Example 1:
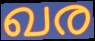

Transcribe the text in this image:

ഖര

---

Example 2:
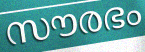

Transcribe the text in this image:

സൗരഭം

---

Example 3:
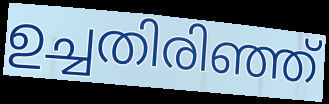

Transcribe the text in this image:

ഉച്ചതിരിഞ്ഞ്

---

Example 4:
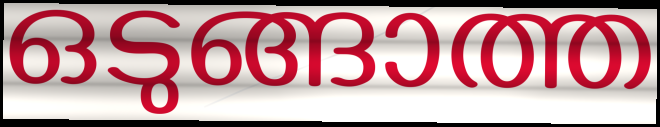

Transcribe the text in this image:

ഒടുങ്ങാത്ത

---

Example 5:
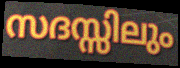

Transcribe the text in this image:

സദസ്സിലും